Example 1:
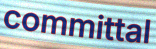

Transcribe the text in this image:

committal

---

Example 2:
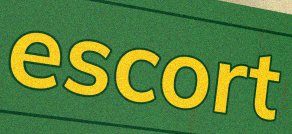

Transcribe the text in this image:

escort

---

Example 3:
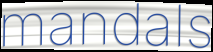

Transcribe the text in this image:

mandals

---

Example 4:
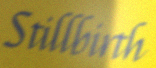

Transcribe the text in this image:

Stillbirth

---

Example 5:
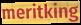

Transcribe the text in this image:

meritking